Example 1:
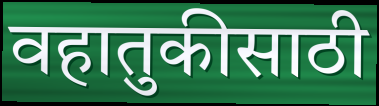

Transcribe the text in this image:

वहातुकीसाठी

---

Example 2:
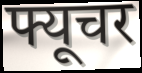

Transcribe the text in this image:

फ्यूचर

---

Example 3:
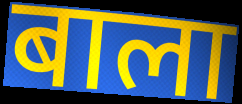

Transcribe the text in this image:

बाला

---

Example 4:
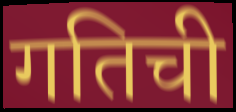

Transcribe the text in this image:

गतिची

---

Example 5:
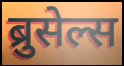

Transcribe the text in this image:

ब्रुसेल्स